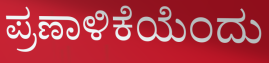
ಪ್ರಣಾಳಿಕೆಯೆಂದು